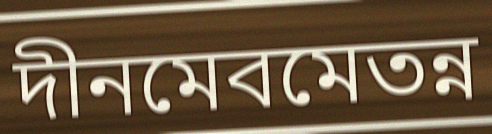
দীনমেবমেতন্ন